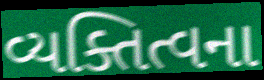
વ્યક્તિત્વના